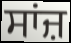
ਸਾਂਜ਼